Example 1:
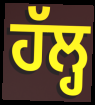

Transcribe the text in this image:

ਹੱਲ੍ਹ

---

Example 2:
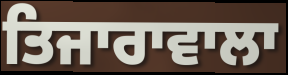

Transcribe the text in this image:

ਤਿਜਾਰਾਵਾਲਾ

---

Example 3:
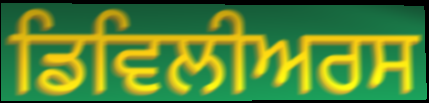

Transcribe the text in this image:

ਡਿਵਿਲੀਅਰਸ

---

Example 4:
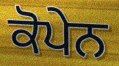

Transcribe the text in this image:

ਕੋਪੇਨ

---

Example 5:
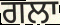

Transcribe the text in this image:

ਗਲਾ